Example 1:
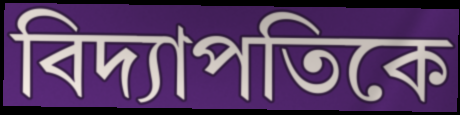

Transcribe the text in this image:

বিদ্যাপতিকে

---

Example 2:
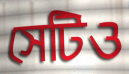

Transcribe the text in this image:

সেটিও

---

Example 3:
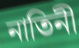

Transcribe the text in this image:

নাতিনী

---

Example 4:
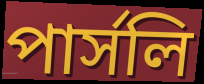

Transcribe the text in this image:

পার্সলি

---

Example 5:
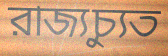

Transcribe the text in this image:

রাজ্যচ্যুত